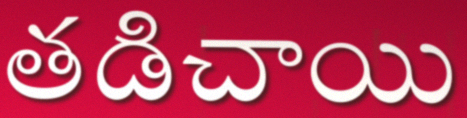
తడిచాయి